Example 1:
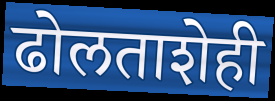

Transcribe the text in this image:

ढोलताशेही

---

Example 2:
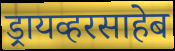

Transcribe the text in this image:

ड्रायव्हरसाहेब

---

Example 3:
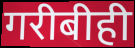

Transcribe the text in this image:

गरीबीही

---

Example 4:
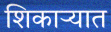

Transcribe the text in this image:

शिकाऱ्यात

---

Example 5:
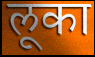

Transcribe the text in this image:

लूका